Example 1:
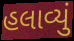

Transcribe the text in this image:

હલાવ્યું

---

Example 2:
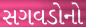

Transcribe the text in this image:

સગવડોનો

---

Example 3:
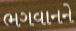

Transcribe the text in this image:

ભગવાનને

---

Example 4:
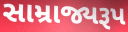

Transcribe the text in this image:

સામ્રાજ્યરૂપ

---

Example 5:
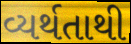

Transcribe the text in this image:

વ્યર્થતાથી